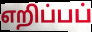
எறிப்பப்